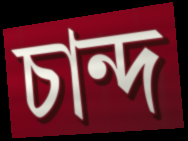
চান্দ